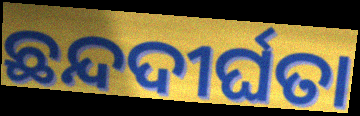
ଛନ୍ଦଦୀର୍ଘତା